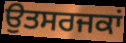
ਉਤਸਰਜਕਾਂ